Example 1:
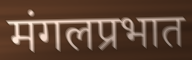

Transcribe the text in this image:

मंगलप्रभात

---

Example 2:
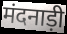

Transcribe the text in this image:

मंदनाड़ी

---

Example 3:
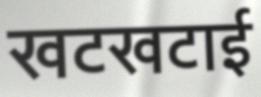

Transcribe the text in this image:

खटखटाई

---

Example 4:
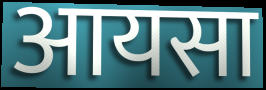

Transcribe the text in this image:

आयसा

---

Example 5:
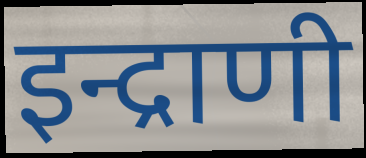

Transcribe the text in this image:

इन्द्राणी